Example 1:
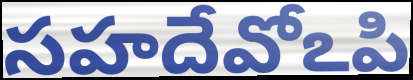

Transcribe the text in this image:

సహదేవోఽపి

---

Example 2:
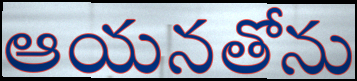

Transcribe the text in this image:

ఆయనతోను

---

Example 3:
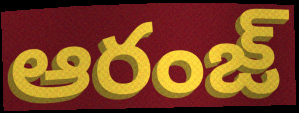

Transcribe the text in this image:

ఆరంజ్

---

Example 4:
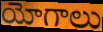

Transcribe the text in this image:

యోగాలు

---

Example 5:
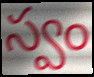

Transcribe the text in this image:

స్వం